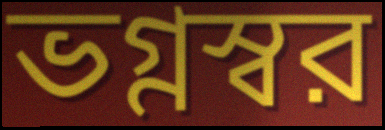
ভগ্নস্বর